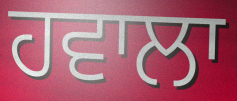
ਹਵਾਲਾ